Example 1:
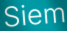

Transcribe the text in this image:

Siem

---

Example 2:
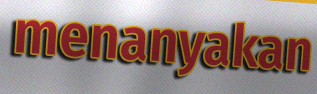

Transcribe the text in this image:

menanyakan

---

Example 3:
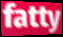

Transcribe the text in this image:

fatty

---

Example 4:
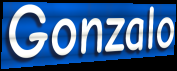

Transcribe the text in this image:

Gonzalo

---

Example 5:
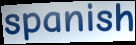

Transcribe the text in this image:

spanish